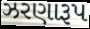
ઝરણારૂપ